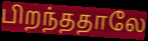
பிறந்ததாலே